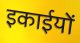
इकाईयों